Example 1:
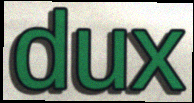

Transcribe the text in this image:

dux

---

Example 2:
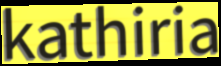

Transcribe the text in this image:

kathiria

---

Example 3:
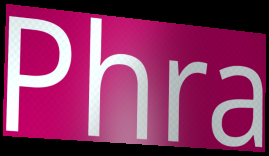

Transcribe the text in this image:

Phra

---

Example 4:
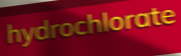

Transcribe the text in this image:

hydrochlorate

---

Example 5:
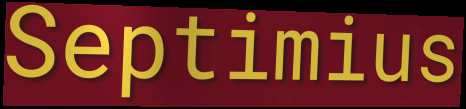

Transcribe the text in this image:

Septimius